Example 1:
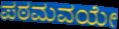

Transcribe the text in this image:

ಪಠಮವಯೇ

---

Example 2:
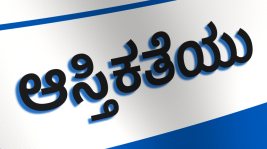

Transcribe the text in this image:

ಆಸ್ತಿಕತೆಯು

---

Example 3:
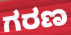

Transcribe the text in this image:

ಗರಣ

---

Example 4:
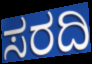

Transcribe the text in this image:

ಸರದಿ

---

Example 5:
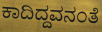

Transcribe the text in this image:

ಕಾದಿದ್ದವನಂತೆ